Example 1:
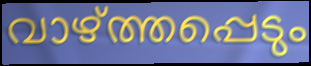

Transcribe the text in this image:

വാഴ്ത്തപ്പെടും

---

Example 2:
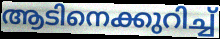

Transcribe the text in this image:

ആടിനെക്കുറിച്ച്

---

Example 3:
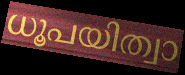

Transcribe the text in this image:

ധൂപയിത്വാ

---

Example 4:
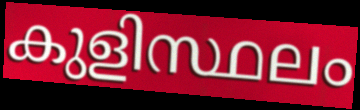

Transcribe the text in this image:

കുളിസ്ഥലം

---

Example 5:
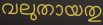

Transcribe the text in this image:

വലുതായതു